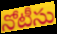
నోటీసు